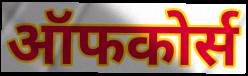
ऑफकोर्स